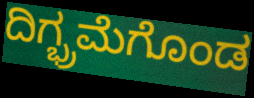
ದಿಗ್ಭ್ರಮೆಗೊಂಡ